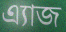
এ্যাজ